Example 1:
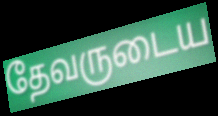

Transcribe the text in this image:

தேவருடைய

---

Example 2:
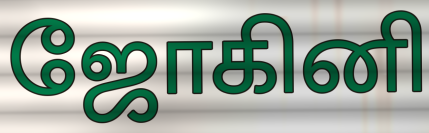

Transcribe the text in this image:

ஜோகினி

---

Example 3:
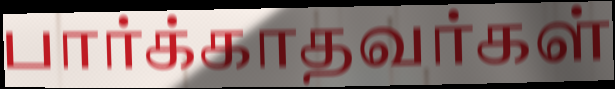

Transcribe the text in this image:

பார்க்காதவர்கள்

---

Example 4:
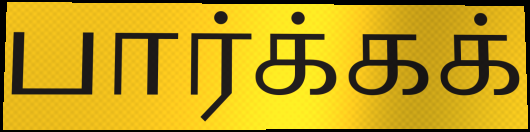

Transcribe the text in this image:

பார்க்கக்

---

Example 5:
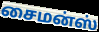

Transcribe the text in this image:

சைமன்ஸ்